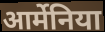
आर्मेनिया